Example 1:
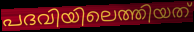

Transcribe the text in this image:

പദവിയിലെത്തിയത്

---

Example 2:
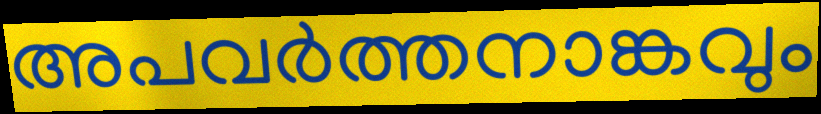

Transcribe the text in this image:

അപവർത്തനാങ്കവും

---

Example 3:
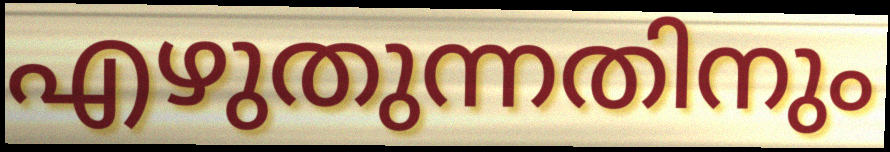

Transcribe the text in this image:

എഴുതുന്നതിനും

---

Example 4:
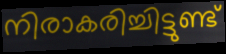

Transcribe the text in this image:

നിരാകരിച്ചിട്ടുണ്ട്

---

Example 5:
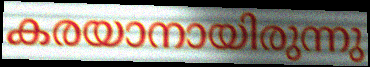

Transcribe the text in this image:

കരയാനായിരുന്നു